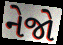
નેજો